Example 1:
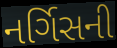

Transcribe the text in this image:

નર્ગિસની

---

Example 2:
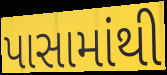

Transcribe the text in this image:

પાસામાંથી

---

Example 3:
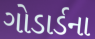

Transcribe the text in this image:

ગોડાર્ડના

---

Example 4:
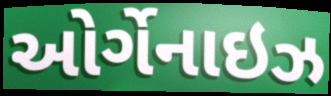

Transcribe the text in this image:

ઓર્ગેનાઇઝ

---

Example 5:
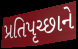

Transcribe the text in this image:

પ્રતિપૃચ્છાને